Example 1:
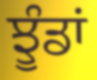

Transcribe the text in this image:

ਝੂੰਡਾਂ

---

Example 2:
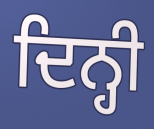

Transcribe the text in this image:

ਦਿਨ੍ਹੀ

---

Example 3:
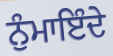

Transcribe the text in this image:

ਨੁੰਮਾਇੰਦੇ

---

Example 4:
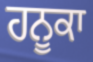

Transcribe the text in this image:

ਹਨੂਕਾ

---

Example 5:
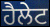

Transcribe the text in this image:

ਹੈਲੇਟ